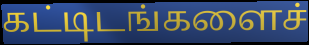
கட்டிடங்களைச்